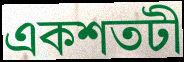
একশতটী